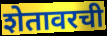
शेतावरची